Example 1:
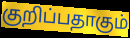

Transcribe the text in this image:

குறிப்பதாகும்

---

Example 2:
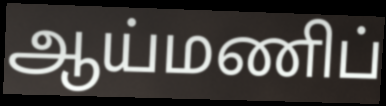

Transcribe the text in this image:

ஆய்மணிப்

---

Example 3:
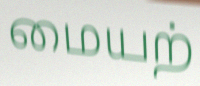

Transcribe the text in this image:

மையற்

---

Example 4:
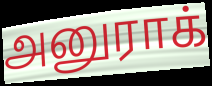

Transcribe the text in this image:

அனுராக்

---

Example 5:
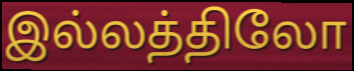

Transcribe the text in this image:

இல்லத்திலோ